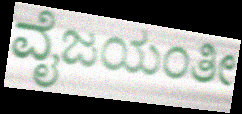
ವೈಜಯಂತೀ